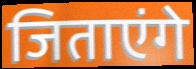
जिताएंगे